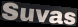
Suvas